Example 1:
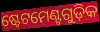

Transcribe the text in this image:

ଷ୍ଟେଟମେଣ୍ଟଗୁଡ଼ିକ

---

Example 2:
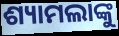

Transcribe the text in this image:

ଶ୍ୟାମଲାଙ୍କୁ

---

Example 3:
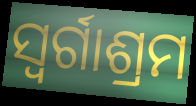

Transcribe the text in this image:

ସ୍ୱର୍ଗାଶ୍ରମ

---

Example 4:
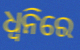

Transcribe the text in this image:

ଧ୍ୱନିରେ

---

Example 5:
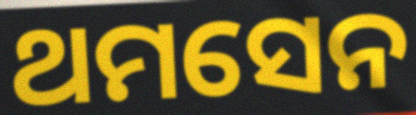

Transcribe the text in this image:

ଥମସେନ